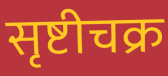
सृष्टीचक्र